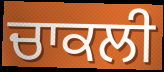
ਚਾਕਲੀ